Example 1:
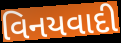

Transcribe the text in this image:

વિનયવાદી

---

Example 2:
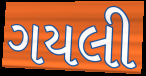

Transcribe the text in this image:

ગયલી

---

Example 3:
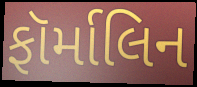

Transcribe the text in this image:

ફૉર્માલિન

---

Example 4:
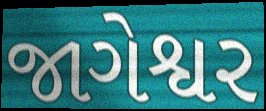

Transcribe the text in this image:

જાગેશ્વર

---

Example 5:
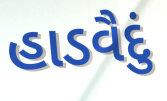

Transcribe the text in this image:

હાડવૈદું